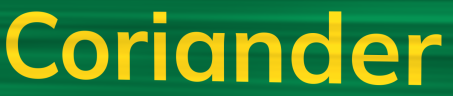
Coriander